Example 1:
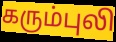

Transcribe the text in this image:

கரும்புலி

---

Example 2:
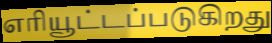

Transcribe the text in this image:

எரியூட்டப்படுகிறது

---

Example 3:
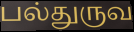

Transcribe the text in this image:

பல்துருவ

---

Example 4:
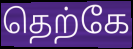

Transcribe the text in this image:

தெற்கே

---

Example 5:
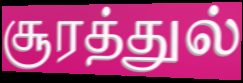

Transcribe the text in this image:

சூரத்துல்